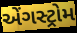
એંગસ્ટ્રોમ